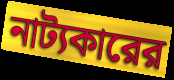
নাট্যকারের